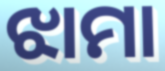
ଝାମା